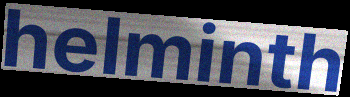
helminth